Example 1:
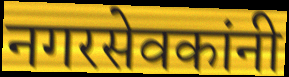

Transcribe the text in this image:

नगरसेवकांनी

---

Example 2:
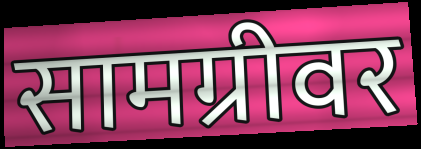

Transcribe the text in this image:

सामग्रीवर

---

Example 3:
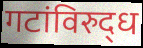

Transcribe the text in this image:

गटांविरुद्ध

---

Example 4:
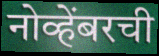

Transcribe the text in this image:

नोव्हेंबरची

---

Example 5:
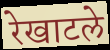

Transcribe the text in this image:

रेखाटले